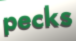
pecks